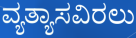
ವ್ಯತ್ಯಾಸವಿರಲು